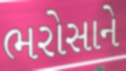
ભરોસાને